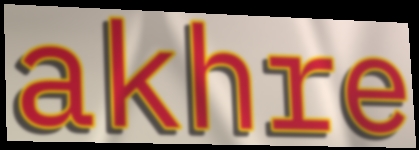
akhre